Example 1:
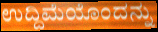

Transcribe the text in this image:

ಉದ್ದಿಮೆಯೊಂದನ್ನು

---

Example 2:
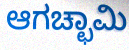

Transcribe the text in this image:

ಆಗಚ್ಛಾಮಿ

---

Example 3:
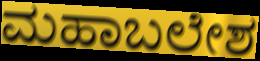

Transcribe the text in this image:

ಮಹಾಬಲೇಶ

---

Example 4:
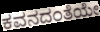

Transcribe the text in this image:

ಕವನದಂತೆಯೇ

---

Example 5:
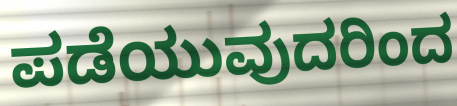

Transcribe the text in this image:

ಪಡೆಯುವುದರಿಂದ